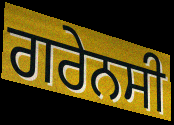
ਗਰੇਨਸੀ